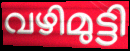
വഴിമുട്ടി